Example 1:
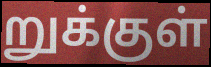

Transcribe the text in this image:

றுக்குள்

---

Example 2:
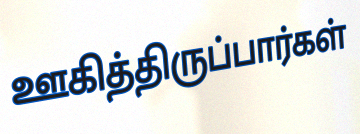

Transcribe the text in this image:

ஊகித்திருப்பார்கள்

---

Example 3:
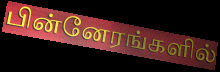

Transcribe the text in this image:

பின்னேரங்களில்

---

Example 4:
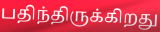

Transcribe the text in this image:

பதிந்திருக்கிறது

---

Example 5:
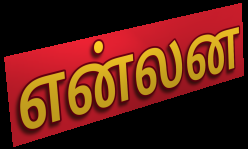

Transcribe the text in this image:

என்லன